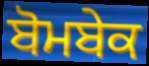
ਬੋਮਬੇਕ